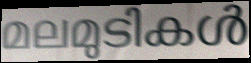
മലമുടികൾ